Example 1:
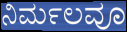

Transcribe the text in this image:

ನಿರ್ಮಲವೂ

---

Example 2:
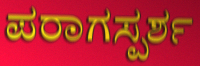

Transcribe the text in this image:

ಪರಾಗಸ್ಪರ್ಶ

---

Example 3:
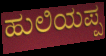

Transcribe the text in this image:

ಹುಲಿಯಪ್ಪ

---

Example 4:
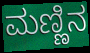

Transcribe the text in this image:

ಮಣ್ಣಿನ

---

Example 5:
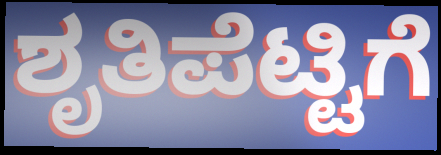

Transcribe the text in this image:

ಶೃತಿಪೆಟ್ಟಿಗೆ